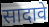
सादावे